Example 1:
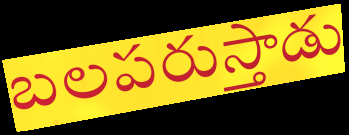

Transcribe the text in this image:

బలపరుస్తాడు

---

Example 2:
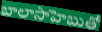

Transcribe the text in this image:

బాలాసాహెబుతో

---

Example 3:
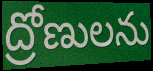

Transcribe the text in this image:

ద్రోణులను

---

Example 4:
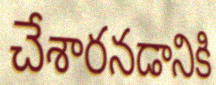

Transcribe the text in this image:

చేశారనడానికి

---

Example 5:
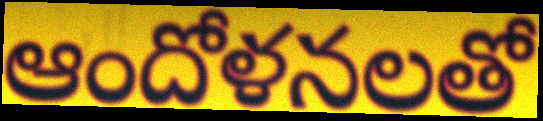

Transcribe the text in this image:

ఆందోళనలతో